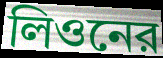
লিওনের